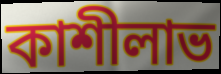
কাশীলাভ